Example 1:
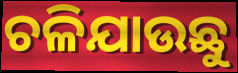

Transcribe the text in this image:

ଚଳିଯାଉଛୁ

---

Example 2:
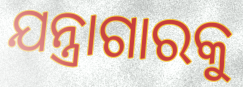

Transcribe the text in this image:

ଯନ୍ତ୍ରାଗାରକୁ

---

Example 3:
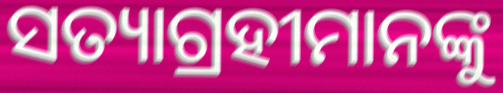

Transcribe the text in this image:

ସତ୍ୟାଗ୍ରହୀମାନଙ୍କୁ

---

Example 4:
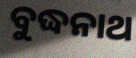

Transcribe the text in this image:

ବୁଦ୍ଧନାଥ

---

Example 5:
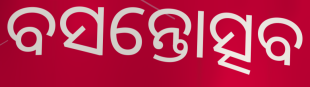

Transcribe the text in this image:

ବସନ୍ତୋତ୍ସବ